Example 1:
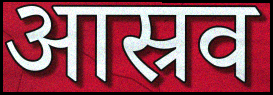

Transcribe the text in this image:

आस्रव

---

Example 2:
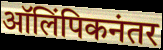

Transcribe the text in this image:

ऑलिंपिकनंतर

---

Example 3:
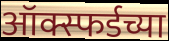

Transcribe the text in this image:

ऑक्स्फर्डच्या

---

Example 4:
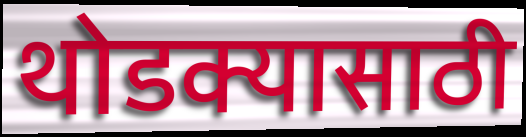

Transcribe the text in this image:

थोडक्यासाठी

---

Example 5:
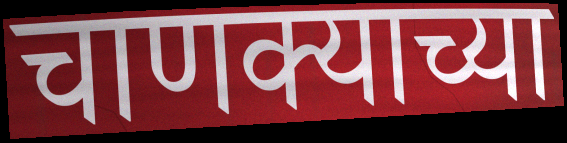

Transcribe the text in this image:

चाणक्याच्या